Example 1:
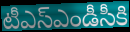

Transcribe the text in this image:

టీఎస్ఎండీసీకి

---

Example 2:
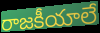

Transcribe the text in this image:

రాజకీయాలే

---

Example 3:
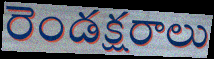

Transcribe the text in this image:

రెండక్షరాలు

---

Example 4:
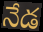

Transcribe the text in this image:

నేడ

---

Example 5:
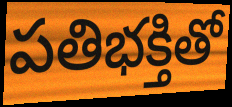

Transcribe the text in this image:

పతిభక్తితో